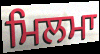
ਮਿਲਮਾ